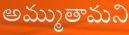
అమ్ముతామని